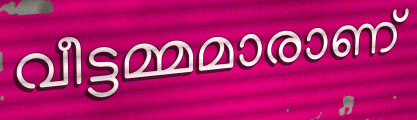
വീട്ടമ്മമാരാണ്